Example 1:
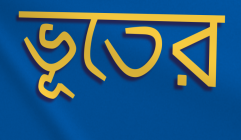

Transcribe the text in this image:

ভূতের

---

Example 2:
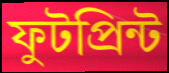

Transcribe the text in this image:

ফুটপ্রিন্ট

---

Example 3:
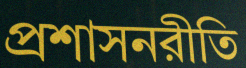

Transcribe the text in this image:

প্রশাসনরীতি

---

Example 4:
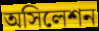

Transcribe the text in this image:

অসিলেশন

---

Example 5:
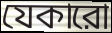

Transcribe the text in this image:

যেকারো